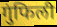
गुंफिली